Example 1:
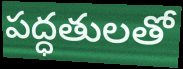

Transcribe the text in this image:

పద్ధతులతో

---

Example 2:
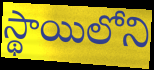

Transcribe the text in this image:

స్థాయిలోని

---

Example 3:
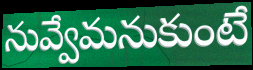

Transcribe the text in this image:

నువ్వేమనుకుంటే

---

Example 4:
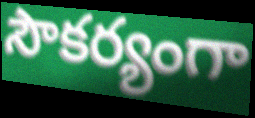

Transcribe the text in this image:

సౌకర్యంగా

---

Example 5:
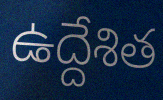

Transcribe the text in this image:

ఉద్దేశిత